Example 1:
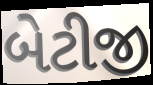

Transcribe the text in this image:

બેટીજી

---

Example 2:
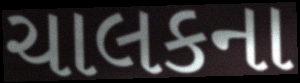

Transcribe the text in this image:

ચાલકના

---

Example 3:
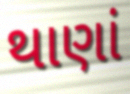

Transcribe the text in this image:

થાણાં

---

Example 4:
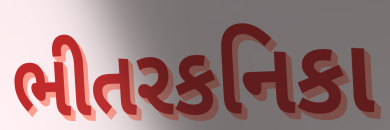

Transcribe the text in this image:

ભીતરકનિકા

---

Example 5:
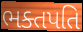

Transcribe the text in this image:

ભક્તપતિ